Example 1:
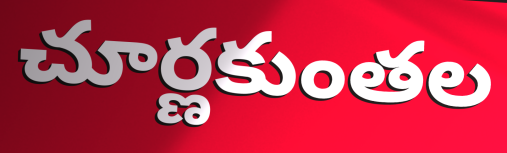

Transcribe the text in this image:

చూర్ణకుంతల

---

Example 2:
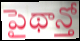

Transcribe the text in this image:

పైథాన్తో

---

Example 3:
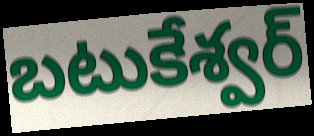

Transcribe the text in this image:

బటుకేశ్వర్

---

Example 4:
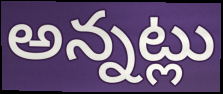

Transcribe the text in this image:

అన్నట్లు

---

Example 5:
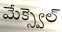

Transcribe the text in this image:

మేక్స్వెల్